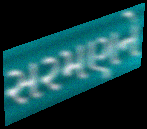
સરમણને